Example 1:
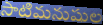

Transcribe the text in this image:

సాటిమనుషుల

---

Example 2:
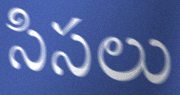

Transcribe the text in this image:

సిసలు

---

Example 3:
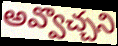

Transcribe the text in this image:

అవ్వొచ్చని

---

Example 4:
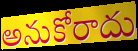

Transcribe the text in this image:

అనుకోరాదు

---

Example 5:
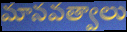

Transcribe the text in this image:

మానవత్వాలు